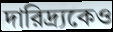
দারিদ্র্যকেও